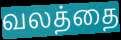
வலத்தை